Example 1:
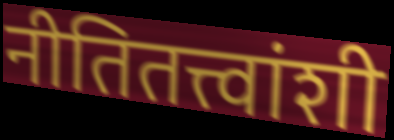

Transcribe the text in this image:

नीतितत्त्वांशी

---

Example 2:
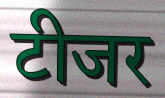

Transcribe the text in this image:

टीजर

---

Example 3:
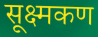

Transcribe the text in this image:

सूक्ष्मकण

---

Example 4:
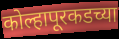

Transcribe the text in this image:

कोल्हापूरकडच्या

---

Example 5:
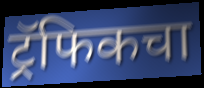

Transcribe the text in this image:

ट्रॅफिकचा